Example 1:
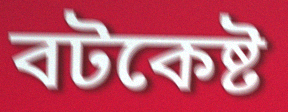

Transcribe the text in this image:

বটকেষ্ট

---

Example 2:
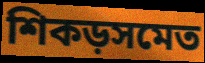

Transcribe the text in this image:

শিকড়সমেত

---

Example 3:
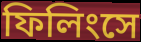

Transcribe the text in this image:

ফিলিংসে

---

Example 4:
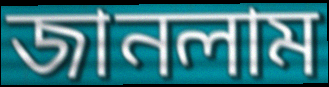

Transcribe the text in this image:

জানলাম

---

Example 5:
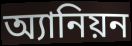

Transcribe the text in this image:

অ্যানিয়ন